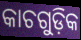
କାଚଗୁଡ଼ିକ